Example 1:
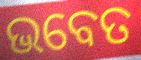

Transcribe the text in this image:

ଭବେତ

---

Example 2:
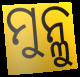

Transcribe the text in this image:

ମୁନ୍ଳୁ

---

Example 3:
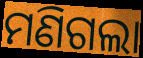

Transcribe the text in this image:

ମଣିଗଲା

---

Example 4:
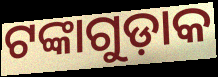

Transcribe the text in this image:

ଟଙ୍କାଗୁଡ଼ାକ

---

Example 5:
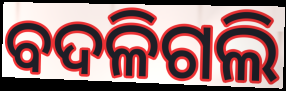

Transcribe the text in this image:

ବଦଳିଗଲି